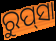
ରୁପ୍‍ସା